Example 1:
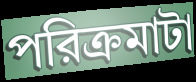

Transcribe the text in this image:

পরিক্রমাটা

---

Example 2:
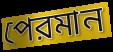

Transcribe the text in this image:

পেরমান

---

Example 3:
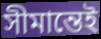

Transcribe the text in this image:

সীমান্তেই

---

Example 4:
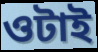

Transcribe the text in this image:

ওটাই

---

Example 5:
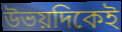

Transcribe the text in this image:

উভয়দিকেই